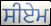
ਸੀਏਮ